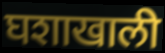
घशाखाली